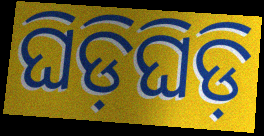
ଘିଡ଼ିଘିଡ଼ି